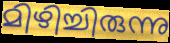
മിഴിച്ചിരുന്നു